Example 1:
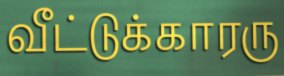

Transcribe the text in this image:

வீட்டுக்காரரு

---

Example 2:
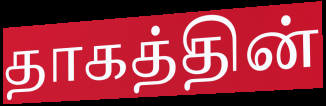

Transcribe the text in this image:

தாகத்தின்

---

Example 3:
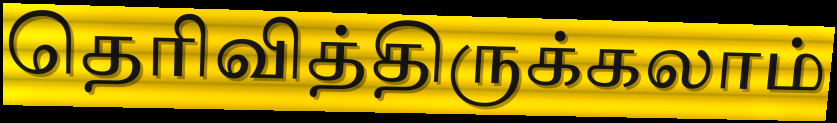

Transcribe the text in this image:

தெரிவித்திருக்கலாம்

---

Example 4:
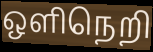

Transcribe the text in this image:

ஒளிநெறி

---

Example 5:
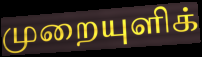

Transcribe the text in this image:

முறையுளிக்